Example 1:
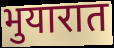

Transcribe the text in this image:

भुयारात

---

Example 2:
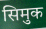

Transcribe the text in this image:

सिमुक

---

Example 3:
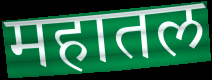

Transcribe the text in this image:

महातल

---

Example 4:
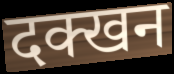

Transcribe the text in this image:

दक्खन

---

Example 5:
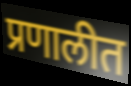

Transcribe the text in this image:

प्रणालीत